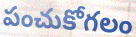
పంచుకోగలం